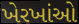
ખેરખાંઓ